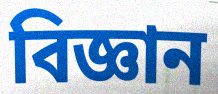
বিজ্ঞান